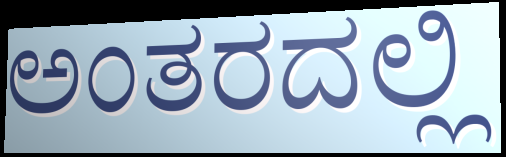
ಅಂತರದಲ್ಲಿ